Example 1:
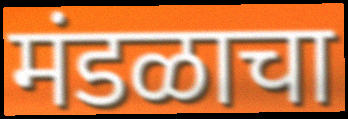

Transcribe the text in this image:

मंडळाचा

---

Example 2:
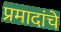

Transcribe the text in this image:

प्रमादांचे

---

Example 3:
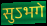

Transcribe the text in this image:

सुऽभगे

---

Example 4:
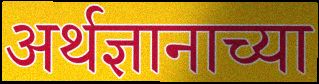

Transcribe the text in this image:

अर्थज्ञानाच्या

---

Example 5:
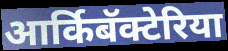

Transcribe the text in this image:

आर्किबॅक्टेरिया